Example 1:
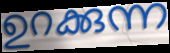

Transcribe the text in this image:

ഉറക്കുന്ന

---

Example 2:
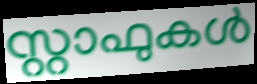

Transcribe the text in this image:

സ്റ്റാഫുകൾ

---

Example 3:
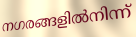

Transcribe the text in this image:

നഗരങ്ങളിൽനിന്ന്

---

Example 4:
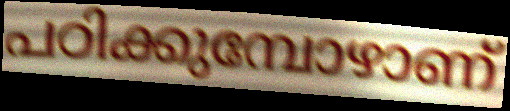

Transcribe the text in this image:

പഠിക്കുമ്പോഴാണ്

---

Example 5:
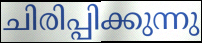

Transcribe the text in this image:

ചിരിപ്പിക്കുന്നു